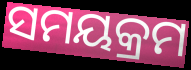
ସମୟକ୍ରମ